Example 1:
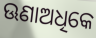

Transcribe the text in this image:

ଊଣାଅଧିକେ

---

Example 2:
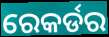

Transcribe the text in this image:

ରେକର୍ଡର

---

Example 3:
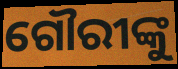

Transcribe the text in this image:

ଗୌରୀଙ୍କୁ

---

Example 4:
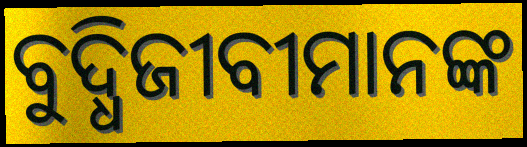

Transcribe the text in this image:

ବୁଦ୍ଧିଜୀବୀମାନଙ୍କ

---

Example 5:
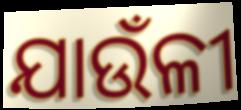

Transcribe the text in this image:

ଯାଉଁଳୀ